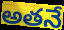
అతనే